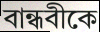
বান্ধবীকে